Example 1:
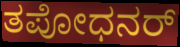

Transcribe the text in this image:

ತಪೋಧನರ್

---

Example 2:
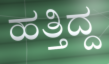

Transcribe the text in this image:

ಹತ್ತಿದ್ದ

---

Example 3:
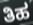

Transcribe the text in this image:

ತಿಹ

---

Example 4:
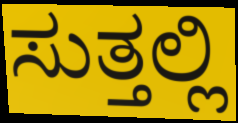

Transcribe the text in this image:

ಸುತ್ತಲ್ಲಿ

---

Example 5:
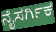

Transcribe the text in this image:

ನೈಸರ್ಗಿಕ